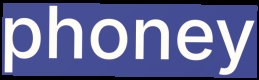
phoney